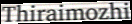
Thiraimozhi